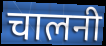
चालनी